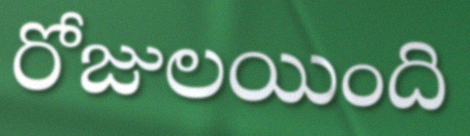
రోజులయింది